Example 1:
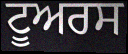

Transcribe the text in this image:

ਟੂਅਰਸ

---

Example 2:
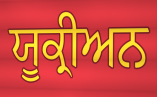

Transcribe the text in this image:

ਯੂਕ੍ਰੀਅਨ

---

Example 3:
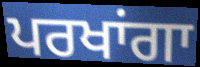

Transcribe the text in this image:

ਪਰਖਾਂਗਾ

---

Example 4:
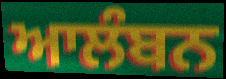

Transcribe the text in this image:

ਆਲੰਬਨ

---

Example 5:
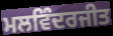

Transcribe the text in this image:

ਮਲਵਿੰਦਰਜੀਤ